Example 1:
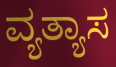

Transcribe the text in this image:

ವ್ಯತ್ಯಾಸ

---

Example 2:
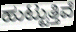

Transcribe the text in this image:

ಹುಟ್ಟುತ್ತಿವೆ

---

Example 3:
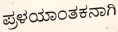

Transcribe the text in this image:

ಪ್ರಳಯಾಂತಕನಾಗಿ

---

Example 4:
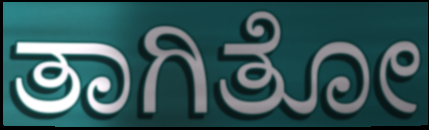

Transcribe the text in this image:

ತಾಗಿತೋ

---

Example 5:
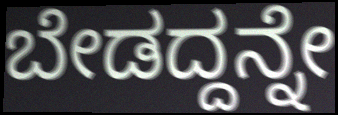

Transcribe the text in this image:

ಬೇಡದ್ದನ್ನೇ